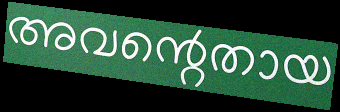
അവന്റെതായ